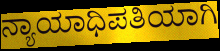
ನ್ಯಾಯಾಧಿಪತಿಯಾಗಿ